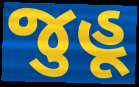
જુહૂ